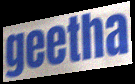
geetha